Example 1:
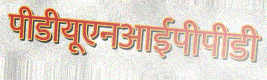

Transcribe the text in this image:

पीडीयूएनआईपीपीडी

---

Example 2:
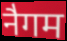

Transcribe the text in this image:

नैगम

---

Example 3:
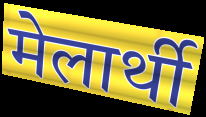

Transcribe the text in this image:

मेलार्थी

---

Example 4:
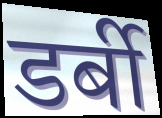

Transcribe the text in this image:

डर्बी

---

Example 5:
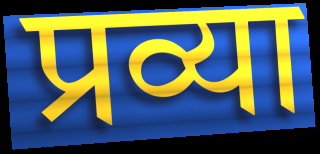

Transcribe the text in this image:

प्रव्या